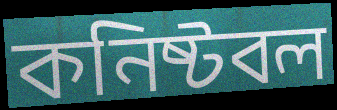
কনিষ্টবল